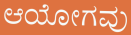
ಆಯೋಗವು